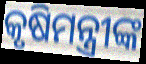
କୃଷିମନ୍ତ୍ରୀଙ୍କ